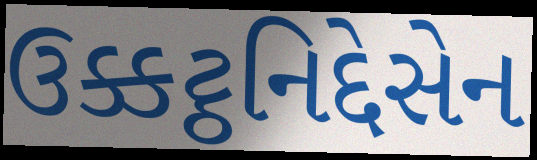
ઉક્કટ્ઠનિદ્દેસેન